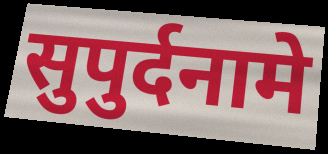
सुपुर्दनामे